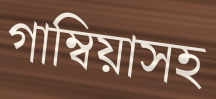
গাম্বিয়াসহ